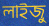
লাইজু